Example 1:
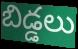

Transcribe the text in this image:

బిడ్డలు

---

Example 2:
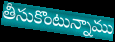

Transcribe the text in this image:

తీసుకొంటున్నాము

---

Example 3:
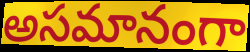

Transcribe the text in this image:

అసమానంగా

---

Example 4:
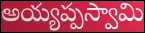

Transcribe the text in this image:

అయ్యప్పస్వామి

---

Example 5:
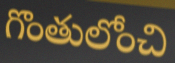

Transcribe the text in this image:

గొంతులోంచి